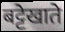
बट्टेखाते